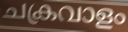
ചക്രവാളം